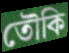
তৌকি